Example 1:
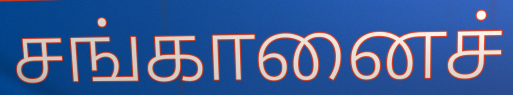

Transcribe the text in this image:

சங்கானைச்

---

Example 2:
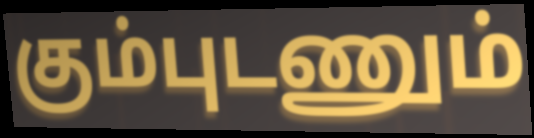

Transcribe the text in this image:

கும்புடணும்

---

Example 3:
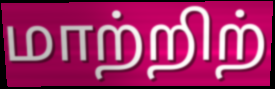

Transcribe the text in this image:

மாற்றிற்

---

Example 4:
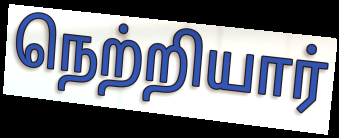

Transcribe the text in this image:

நெற்றியார்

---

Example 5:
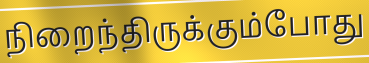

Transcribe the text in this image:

நிறைந்திருக்கும்போது